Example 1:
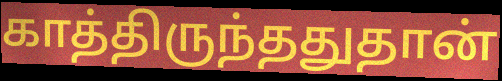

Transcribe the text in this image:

காத்திருந்ததுதான்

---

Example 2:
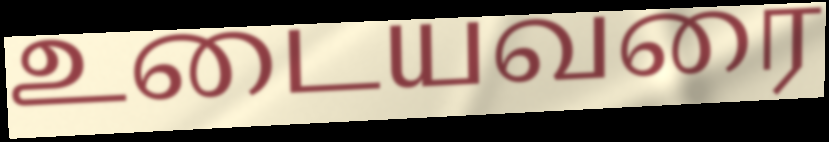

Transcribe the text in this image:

உடையவரை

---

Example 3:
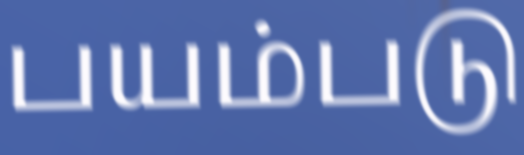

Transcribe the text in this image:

பயம்படு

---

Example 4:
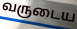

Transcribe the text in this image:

வருடைய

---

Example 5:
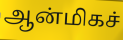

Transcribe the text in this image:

ஆன்மிகச்